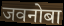
जवनोबा